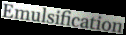
Emulsification